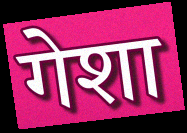
गेशा